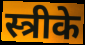
स्त्रीके